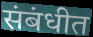
संबंधीत